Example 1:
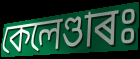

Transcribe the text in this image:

কেলেণ্ডাৰঃ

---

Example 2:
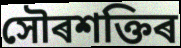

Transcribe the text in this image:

সৌৰশক্তিৰ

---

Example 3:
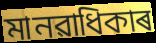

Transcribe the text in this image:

মানৱাধিকাৰ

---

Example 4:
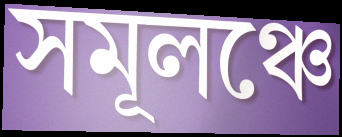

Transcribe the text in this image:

সমূলঞ্চে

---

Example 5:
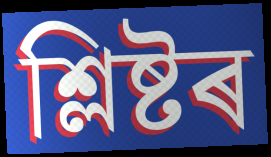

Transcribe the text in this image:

শ্লিষ্টৰ